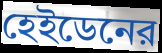
হেইডেনের